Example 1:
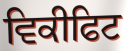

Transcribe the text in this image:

ਵਿਕੀਫਿਟ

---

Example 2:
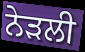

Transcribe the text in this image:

ਨੇੜਲੀ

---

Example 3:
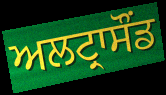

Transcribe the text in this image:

ਅਲਟ੍ਰਾਸੌਂਡ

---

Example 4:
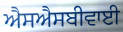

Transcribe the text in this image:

ਐਸਐਸਬੀਵਾਈ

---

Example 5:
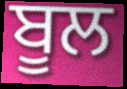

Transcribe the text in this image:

ਬੂਲ